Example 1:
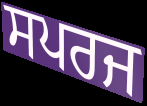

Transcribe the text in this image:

ਸਪਰਜ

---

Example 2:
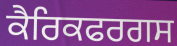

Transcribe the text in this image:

ਕੈਰਿਕਫਰਗਸ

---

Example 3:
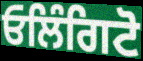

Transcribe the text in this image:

ਓਲਿੰਗਿਟੋ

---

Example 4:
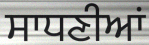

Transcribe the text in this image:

ਸਾਧਣੀਆਂ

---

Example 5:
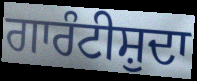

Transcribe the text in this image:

ਗਾਰੰਟੀਸ਼ੁਦਾ